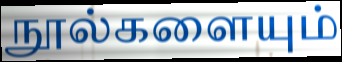
நூல்களையும்